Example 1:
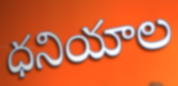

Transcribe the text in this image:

ధనియాల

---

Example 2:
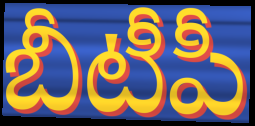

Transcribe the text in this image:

బీటీపీ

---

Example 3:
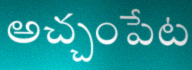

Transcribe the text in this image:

అచ్చంపేట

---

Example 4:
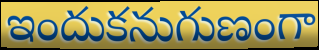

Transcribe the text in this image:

ఇందుకనుగుణంగా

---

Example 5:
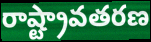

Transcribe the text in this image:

రాష్ట్రావతరణ